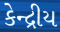
કેન્દ્રીય